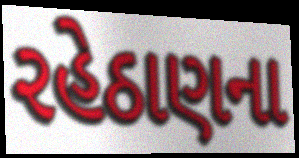
રહેઠાણના